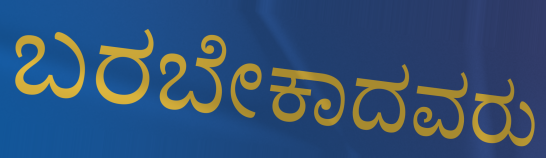
ಬರಬೇಕಾದವರು